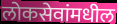
लोकसेवांमधील